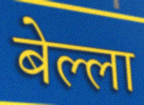
बेल्ला